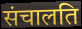
संचालति